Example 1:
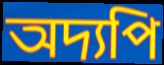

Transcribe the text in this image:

অদ্যপি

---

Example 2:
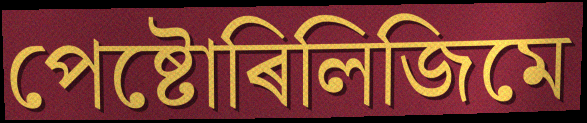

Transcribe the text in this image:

পেষ্টোৰিলিজিমে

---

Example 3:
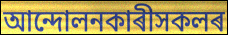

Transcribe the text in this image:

আন্দোলনকাৰীসকলৰ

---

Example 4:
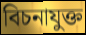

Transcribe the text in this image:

বিচনাযুক্ত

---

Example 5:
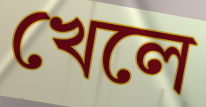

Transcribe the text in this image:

খেলে